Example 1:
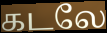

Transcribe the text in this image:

கடலே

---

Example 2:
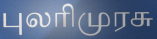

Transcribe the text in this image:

புலரிமுரசு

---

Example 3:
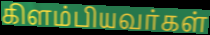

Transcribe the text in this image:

கிளம்பியவர்கள்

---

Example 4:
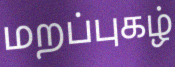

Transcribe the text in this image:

மறப்புகழ்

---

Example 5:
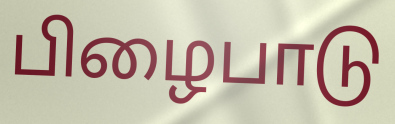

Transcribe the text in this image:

பிழைபாடு